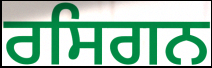
ਰਸਿਗਨ